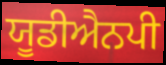
ਯੂਡੀਐਨਪੀ